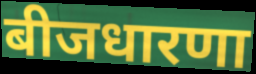
बीजधारणा